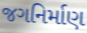
જગનિર્માણ